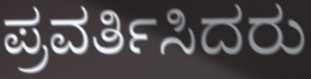
ಪ್ರವರ್ತಿಸಿದರು